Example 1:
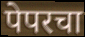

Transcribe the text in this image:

पेपरचा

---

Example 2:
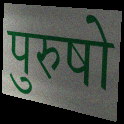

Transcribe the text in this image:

पुरुषो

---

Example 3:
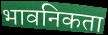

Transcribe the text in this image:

भावनिकता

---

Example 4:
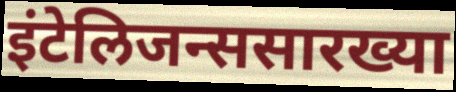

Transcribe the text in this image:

इंटेलिजन्ससारख्या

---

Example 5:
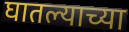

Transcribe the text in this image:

घातल्याच्या